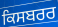
ਕਿਸਬਰਰ